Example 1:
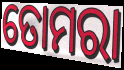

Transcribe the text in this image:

ତୋମରା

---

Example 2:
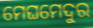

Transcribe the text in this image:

ମେଘମେଦୁର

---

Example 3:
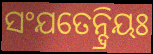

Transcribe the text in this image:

ସଂଯତେନ୍ଦ୍ରିୟଃ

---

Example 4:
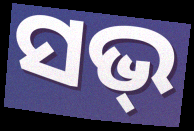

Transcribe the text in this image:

ସଭ୍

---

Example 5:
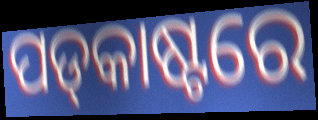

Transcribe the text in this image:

ପଡ୍‌କାଷ୍ଟରେ